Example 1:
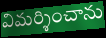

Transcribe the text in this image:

విమర్శించాను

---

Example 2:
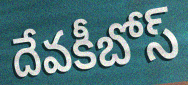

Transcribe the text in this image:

దేవకీబోస్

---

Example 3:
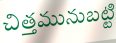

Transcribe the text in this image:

చిత్తమునుబట్టి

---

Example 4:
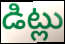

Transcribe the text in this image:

డిట్లు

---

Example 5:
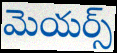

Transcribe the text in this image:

మెయర్స్